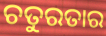
ଚତୁରତାର